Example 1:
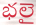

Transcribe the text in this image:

భలై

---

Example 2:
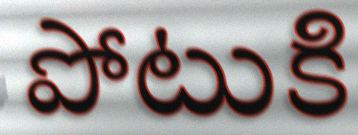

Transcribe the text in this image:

పోటుకి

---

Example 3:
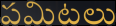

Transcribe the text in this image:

పమిటలు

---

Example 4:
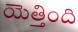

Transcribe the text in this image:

యెత్తింది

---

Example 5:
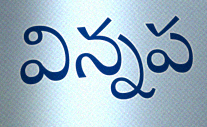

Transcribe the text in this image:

విన్నప